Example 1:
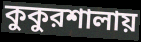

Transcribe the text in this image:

কুকুরশালায়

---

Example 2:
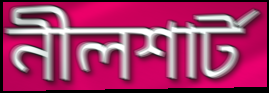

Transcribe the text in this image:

নীলশার্ট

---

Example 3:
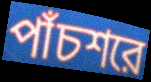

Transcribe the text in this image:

পাঁচশরে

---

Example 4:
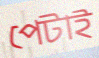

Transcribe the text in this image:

পেটাই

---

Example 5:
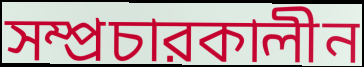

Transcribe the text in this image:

সম্প্রচারকালীন